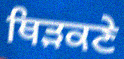
ਥਿੜਕਣੇ